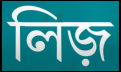
লিজ়